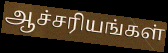
ஆச்சரியங்கள்